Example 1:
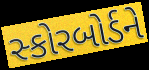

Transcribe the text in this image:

સ્કોરબોર્ડને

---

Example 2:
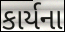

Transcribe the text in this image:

કાર્યના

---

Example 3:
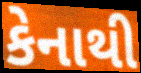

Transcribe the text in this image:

કેનાથી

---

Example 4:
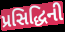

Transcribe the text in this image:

પ્રસિદ્ધિની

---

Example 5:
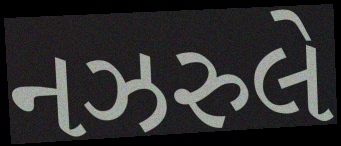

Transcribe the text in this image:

નઝરુલે